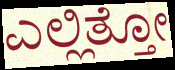
ಎಲ್ಲಿತ್ತೋ